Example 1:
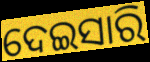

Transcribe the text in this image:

ଦେଇସାରି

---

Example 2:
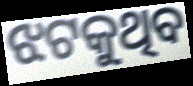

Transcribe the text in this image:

ଝଟକୁଥିବ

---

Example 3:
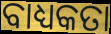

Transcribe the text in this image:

ବାଧ୍ୟକତା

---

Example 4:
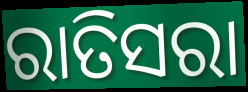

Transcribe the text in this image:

ରାତିସରା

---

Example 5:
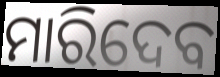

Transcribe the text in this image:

ମାରିଦେବ